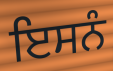
ਇਸਨੰ